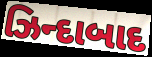
ઝિન્દાબાદ